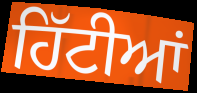
ਹਿੱਟੀਆਂ